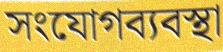
সংযোগব্যবস্থা